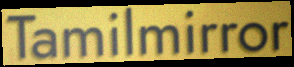
Tamilmirror